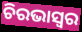
ଚିରଭାସ୍ଵର